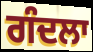
ਗੰਦਲਾ